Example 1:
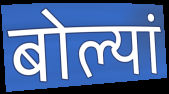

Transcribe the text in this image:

बोल्यां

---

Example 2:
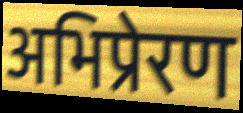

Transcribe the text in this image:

अभिप्रेरण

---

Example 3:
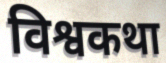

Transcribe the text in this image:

विश्वकथा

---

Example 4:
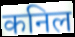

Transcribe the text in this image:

कनिल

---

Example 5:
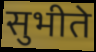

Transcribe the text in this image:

सुभीते